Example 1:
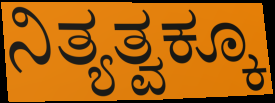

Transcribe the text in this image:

ನಿತ್ಯತ್ವಕ್ಕೂ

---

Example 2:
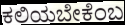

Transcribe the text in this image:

ಕಲಿಯಬೇಕೆಂಬ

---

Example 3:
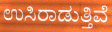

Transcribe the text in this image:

ಉಸಿರಾಡುತ್ತಿವೆ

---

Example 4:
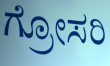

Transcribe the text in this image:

ಗ್ರೋಸರಿ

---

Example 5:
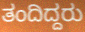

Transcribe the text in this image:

ತಂದಿದ್ದರು